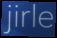
jirle